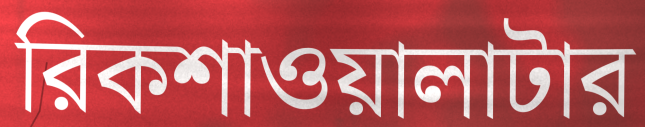
রিকশাওয়ালাটার